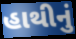
હાથીનું